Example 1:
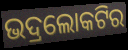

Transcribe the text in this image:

ଭଦ୍ରଲୋକଟିର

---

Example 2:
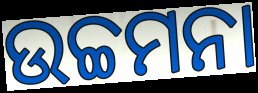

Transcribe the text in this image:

ଉଚ୍ଚମନା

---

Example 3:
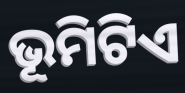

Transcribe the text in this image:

ଭୂମିଟିଏ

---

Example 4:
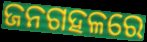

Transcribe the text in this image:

ଜନଗହଳରେ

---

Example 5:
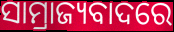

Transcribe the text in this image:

ସାମ୍ରାଜ୍ୟବାଦରେ